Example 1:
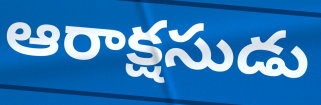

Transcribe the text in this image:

ఆరాక్షసుడు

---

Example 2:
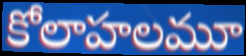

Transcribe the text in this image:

కోలాహలమూ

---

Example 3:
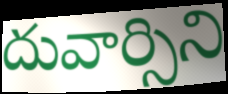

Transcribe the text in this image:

దువార్సిని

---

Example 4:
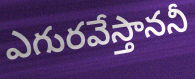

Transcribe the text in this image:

ఎగురవేస్తాననీ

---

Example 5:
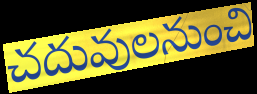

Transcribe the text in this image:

చదువులనుంచి